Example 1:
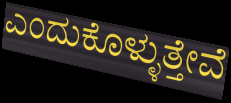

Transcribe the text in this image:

ಎಂದುಕೊಳ್ಳುತ್ತೇವೆ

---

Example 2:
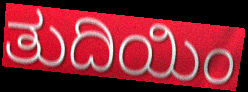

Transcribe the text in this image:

ತುದಿಯಿಂ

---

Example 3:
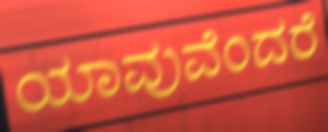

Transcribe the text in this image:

ಯಾವುವೆಂದರೆ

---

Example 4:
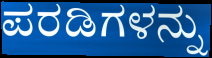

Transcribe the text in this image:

ಪರಡಿಗಳನ್ನು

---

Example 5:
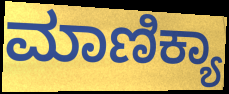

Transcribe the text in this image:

ಮಾಣಿಕ್ಯಾ